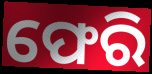
ଫେରି